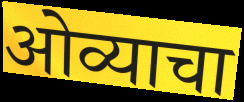
ओव्याचा